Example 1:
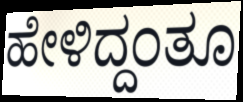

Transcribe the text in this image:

ಹೇಳಿದ್ದಂತೂ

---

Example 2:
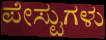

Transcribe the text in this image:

ಪೇಸ್ಟುಗಳು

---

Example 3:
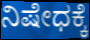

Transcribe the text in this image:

ನಿಷೇಧಕ್ಕೆ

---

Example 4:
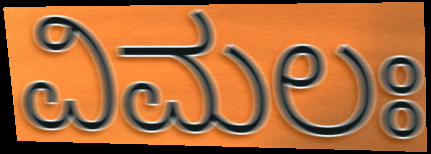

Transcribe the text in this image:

ವಿಮಲಃ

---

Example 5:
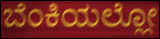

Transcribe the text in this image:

ಬೆಂಕಿಯಲ್ಲೋ